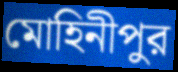
মোহিনীপুর